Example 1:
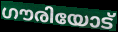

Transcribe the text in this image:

ഗൗരിയോട്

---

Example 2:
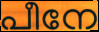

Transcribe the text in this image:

പീനേ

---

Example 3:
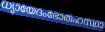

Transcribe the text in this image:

ധ്യായേദംഭോരുഹസ്ഥാ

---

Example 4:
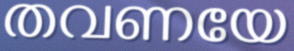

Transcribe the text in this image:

തവണയേ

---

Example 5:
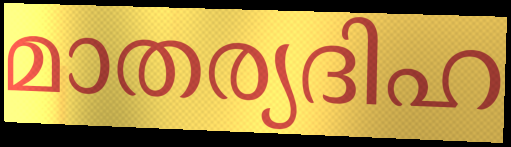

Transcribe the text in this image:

മാതര്യദിഹ